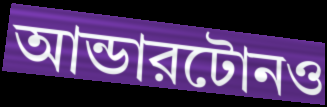
আন্ডারটোনও